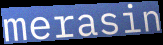
merasin